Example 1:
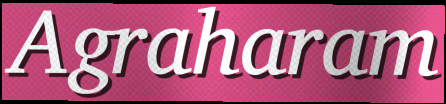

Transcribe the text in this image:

Agraharam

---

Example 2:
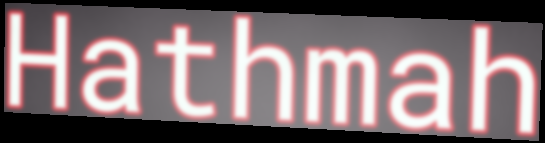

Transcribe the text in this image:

Hathmah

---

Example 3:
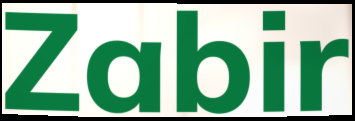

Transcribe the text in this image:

Zabir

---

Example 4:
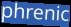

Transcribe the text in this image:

phrenic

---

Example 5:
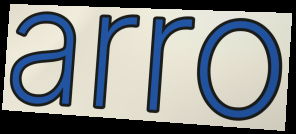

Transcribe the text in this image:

arro